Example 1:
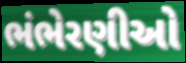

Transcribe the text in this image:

ભંભેરણીઓ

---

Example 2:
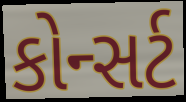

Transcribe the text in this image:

કોન્સર્ટ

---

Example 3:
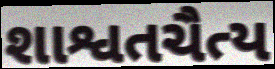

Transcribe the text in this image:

શાશ્વતચૈત્ય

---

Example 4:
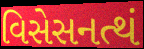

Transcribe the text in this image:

વિસેસનત્થં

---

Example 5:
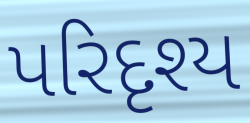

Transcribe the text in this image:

પરિદૃશ્ય